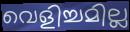
വെളിച്ചമില്ല